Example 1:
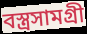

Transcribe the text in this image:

বস্ত্রসামগ্রী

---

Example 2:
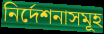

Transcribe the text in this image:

নির্দেশনাসমূহ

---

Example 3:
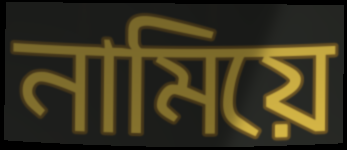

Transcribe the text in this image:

নামিয়ে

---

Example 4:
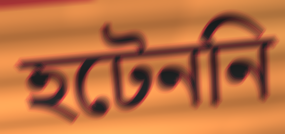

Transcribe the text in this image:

হটেননি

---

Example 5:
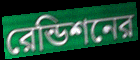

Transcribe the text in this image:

রেন্ডিশনের